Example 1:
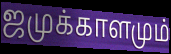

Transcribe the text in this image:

ஜமுக்காளமும்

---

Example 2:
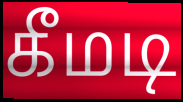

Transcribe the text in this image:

கீமடி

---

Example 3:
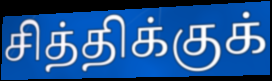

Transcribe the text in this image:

சித்திக்குக்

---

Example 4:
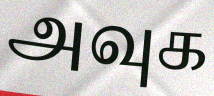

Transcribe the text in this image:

அவுக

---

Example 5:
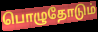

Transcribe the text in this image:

பொழுதோடும்